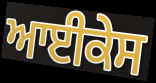
ਆਈਕੇਸ